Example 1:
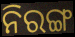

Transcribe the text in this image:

ନିରଙ୍ଗ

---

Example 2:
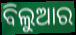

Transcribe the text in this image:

ବିଲୁଆର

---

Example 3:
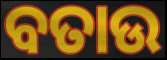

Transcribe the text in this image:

ବତାଉ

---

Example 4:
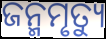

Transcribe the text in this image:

ଜନ୍ମମୃତ୍ୟୁ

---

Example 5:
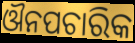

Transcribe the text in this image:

ଔନପଚାରିକ